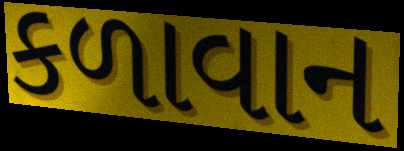
કળાવાન